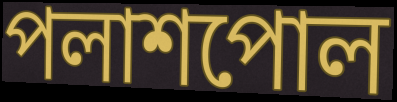
পলাশপোল